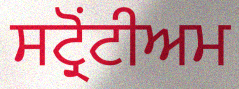
ਸਟ੍ਰੋਂਟੀਅਮ